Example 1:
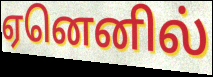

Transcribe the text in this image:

ஏனெனில்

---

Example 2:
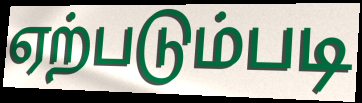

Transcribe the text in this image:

ஏற்படும்படி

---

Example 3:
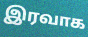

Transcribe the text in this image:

இரவாக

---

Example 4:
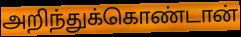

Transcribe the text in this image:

அறிந்துக்கொண்டான்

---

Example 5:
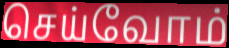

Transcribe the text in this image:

செய்வோம்